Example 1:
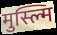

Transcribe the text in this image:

मुस्ल्मि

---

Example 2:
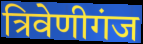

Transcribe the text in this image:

त्रिवेणीगंज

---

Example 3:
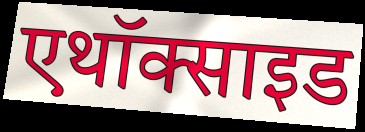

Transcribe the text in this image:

एथॉक्साइड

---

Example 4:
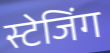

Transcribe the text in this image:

स्टेजिंग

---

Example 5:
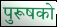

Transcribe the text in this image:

पुरूषको